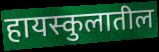
हायस्कुलातील